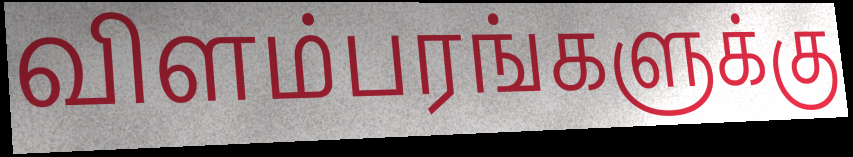
விளம்பரங்களுக்கு